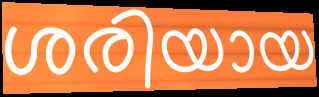
ശരിയായ